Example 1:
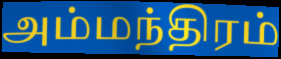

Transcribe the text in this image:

அம்மந்திரம்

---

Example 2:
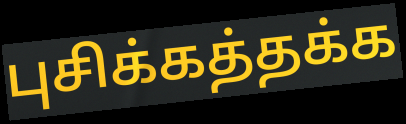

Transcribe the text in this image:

புசிக்கத்தக்க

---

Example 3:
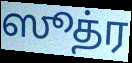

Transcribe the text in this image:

ஸூத்ர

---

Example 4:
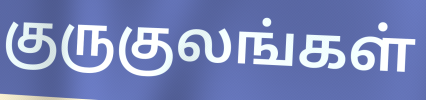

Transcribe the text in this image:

குருகுலங்கள்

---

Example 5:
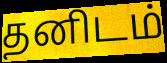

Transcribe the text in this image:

தனிடம்